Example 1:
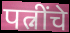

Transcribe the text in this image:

पत्नींचे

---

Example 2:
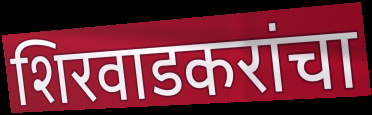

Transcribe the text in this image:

शिरवाडकरांचा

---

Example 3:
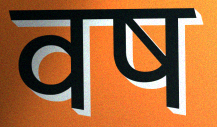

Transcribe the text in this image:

वष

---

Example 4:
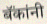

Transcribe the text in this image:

बॅंकांनी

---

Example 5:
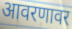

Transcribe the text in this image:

आवरणावर